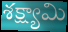
శక్ష్యామి